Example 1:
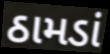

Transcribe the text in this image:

ઠામડાં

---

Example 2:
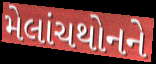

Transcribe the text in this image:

મેલાંચથોનને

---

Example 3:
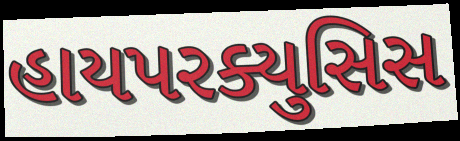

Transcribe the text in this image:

હાયપરક્યુસિસ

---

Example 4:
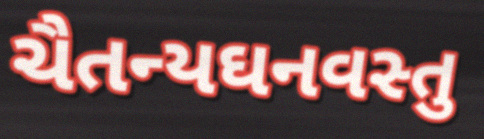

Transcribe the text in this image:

ચૈતન્યઘનવસ્તુ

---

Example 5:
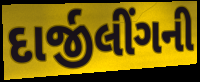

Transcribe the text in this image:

દાર્જીલીંગની